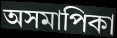
অসমাপিকা